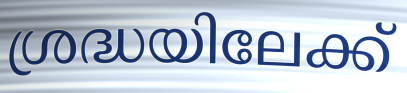
ശ്രദ്ധയിലേക്ക്